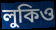
লুকিও